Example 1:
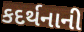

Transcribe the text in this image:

કદર્થનાની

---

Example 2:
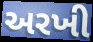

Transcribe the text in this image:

અરખી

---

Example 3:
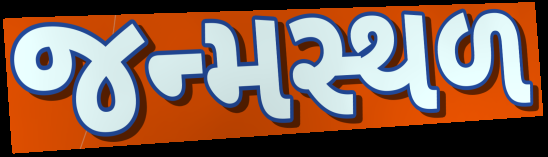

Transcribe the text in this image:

જન્મસ્થળ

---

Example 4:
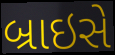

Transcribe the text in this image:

બ્રાઇસે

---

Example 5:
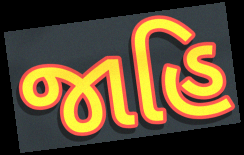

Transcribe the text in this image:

જાહિ